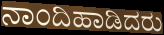
ನಾಂದಿಹಾಡಿದರು